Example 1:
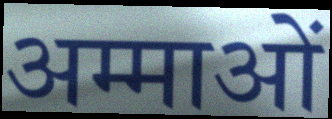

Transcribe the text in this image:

अम्माओं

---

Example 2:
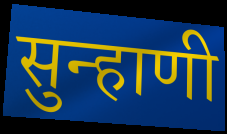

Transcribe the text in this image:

सुन्हाणी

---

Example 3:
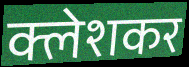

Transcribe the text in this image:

क्लेशकर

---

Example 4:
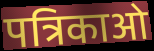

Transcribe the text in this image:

पत्रिकाओ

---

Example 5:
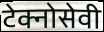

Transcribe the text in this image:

टेक्नोसेवी